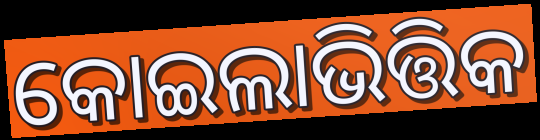
କୋଇଲାଭିତ୍ତିକ